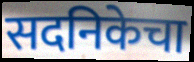
सदनिकेचा